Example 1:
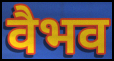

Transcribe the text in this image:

वैभव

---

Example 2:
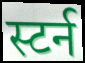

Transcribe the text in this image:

स्टर्न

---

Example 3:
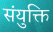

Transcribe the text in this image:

संयुक्ति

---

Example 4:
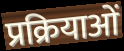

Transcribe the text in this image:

प्रक्रियाओं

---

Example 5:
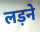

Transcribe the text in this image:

लड़ने